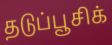
தடுப்பூசிக்